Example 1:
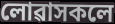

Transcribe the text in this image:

লোৱাসকলে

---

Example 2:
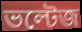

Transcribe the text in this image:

ভল্টেজ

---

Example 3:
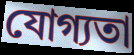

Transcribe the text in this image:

যোগ্য়তা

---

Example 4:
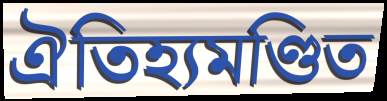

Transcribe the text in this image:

ঐতিহ্যমণ্ডিত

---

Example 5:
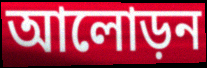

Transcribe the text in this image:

আলোড়ন